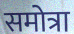
समोत्रा